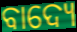
ବାଦ୍ୟେ